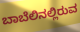
ಬಾಬೆಲಿನಲ್ಲಿರುವ